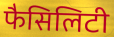
फैसिलिटी